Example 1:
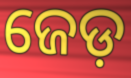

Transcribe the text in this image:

ଜେଡ଼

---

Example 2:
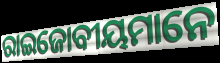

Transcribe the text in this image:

ରାଇଜୋବୀୟମାନେ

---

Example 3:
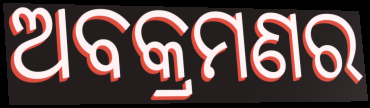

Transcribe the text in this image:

ଅବକ୍ରମଣର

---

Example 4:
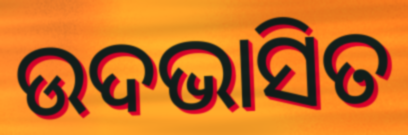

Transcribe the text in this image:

ଉଦଭାସିତ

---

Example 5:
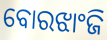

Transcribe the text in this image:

ବୋରଝାଂଜି